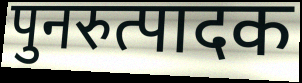
पुनरुत्पादक